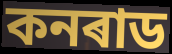
কনৰাড